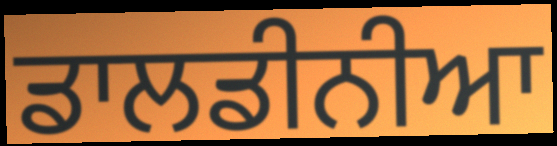
ਡਾਲਡੀਨੀਆ